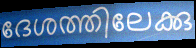
ദേശത്തിലേക്കു